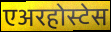
एअरहोस्टेस